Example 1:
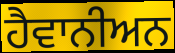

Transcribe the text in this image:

ਹੈਵਾਨੀਅਨ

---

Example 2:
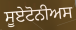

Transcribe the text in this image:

ਸੂਏਟੋਨੀਅਸ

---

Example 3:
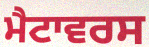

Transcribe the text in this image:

ਮੈਟਾਵਰਸ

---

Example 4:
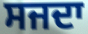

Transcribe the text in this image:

ਸਜਦਾ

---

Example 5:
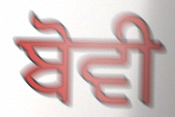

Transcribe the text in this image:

ਬੋਵੀ